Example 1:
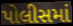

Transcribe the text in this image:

પોલીસમાં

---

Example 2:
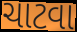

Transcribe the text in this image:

ચાટવા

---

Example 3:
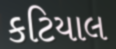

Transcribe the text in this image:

કટિયાલ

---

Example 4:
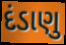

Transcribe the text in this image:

દંડાણુ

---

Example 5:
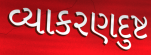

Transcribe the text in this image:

વ્યાકરણદુષ્ટ